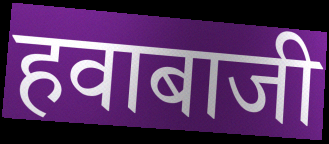
हवाबाजी